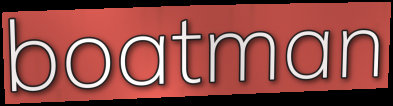
boatman